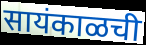
सायंकाळची